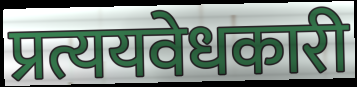
प्रत्ययवेधकारी